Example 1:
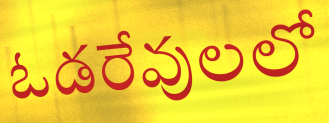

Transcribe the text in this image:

ఓడరేవులలో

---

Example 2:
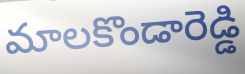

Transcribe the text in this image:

మాలకొండారెడ్డి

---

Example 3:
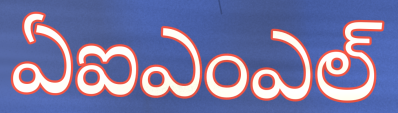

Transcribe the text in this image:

ఏఐఎంఎల్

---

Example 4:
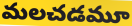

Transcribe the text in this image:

మలచడమూ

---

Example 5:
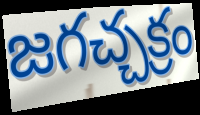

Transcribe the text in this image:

జగచ్చక్రం